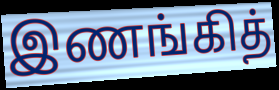
இணங்கித்